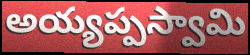
అయ్యప్పస్వామి